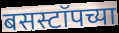
बसस्टॉपच्या